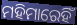
ମହିମାରେହିଁ